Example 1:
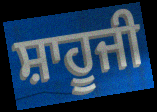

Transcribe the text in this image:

ਸ਼ਾਹੂਜੀ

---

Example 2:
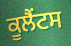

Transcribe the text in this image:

ਕੂਲੈਂਟਸ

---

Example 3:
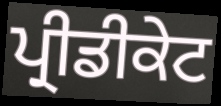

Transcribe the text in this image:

ਪ੍ਰੀਡੀਕੇਟ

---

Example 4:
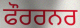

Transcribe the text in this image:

ਫੌਰਰਨਰ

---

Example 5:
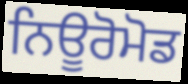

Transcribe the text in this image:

ਨਿਊਰੋਮੋਡ